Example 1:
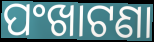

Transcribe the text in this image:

ପଂଖାଟଣା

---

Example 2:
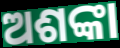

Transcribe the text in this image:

ଅଶଙ୍କା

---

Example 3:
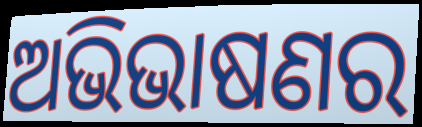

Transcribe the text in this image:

ଅଭିଭାଷଣର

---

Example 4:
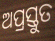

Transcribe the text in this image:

ଅପ୍ରସ୍ତୁତ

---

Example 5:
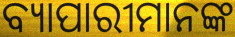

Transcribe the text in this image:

ବ୍ୟାପାରୀମାନଙ୍କ